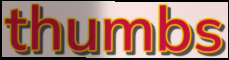
thumbs